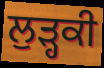
ਲੁੜ੍ਹਕੀ